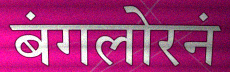
बंगलोरनं